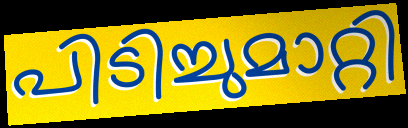
പിടിച്ചുമാറ്റി